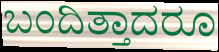
ಬಂದಿತ್ತಾದರೂ